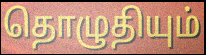
தொழுதியும்